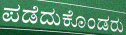
ಪಡೆದುಕೊಂಡರು